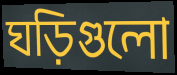
ঘড়িগুলো